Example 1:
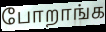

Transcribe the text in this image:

போறாங்க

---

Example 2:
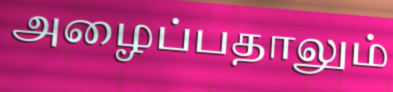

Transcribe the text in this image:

அழைப்பதாலும்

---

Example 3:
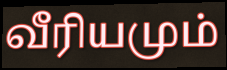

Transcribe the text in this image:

வீரியமும்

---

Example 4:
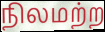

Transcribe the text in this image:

நிலமற்ற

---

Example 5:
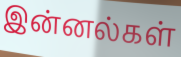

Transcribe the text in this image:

இன்னல்கள்